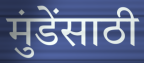
मुंडेंसाठी